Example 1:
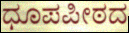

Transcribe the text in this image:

ಧೂಪಪೀಠದ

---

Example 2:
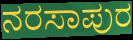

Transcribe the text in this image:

ನರಸಾಪುರ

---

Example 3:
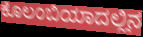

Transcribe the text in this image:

ಕೊಲಂಬಿಯಾದಲ್ಲಿನ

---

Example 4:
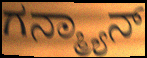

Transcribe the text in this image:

ಗನ್ಮ್ಯಾನ್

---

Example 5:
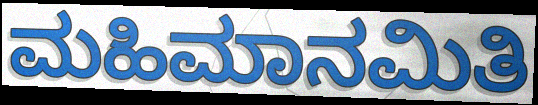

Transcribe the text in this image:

ಮಹಿಮಾನಮಿತಿ